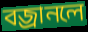
বজ্রানলে